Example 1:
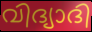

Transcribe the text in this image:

വിദ്യാദി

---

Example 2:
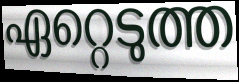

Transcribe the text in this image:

ഏറ്റെടുത്ത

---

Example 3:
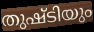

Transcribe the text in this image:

തുഷ്ടിയും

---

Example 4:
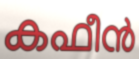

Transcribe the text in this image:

കഫീൻ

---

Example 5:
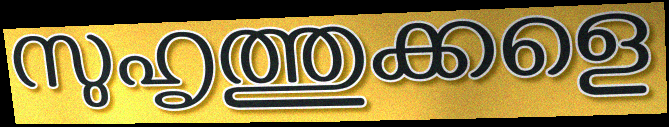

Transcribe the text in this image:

സുഹൃത്തുക്കളെ